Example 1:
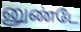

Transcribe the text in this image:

னுண்டே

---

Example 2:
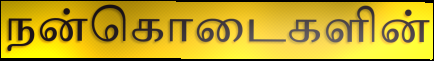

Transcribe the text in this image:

நன்கொடைகளின்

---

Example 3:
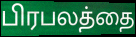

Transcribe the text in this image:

பிரபலத்தை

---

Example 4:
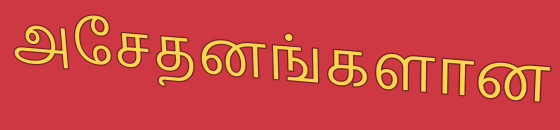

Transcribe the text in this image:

அசேதனங்களான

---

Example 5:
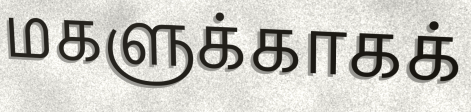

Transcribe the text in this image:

மகளுக்காகக்